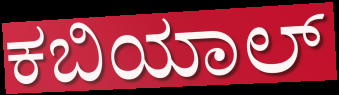
ಕಬಿಯಾಲ್